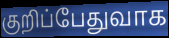
குறிப்பேதுவாக